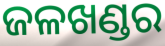
ଜଳଖଣ୍ଡର